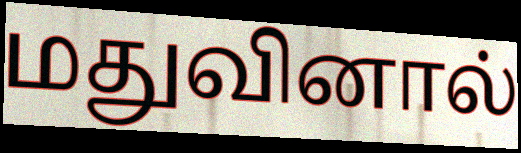
மதுவினால்